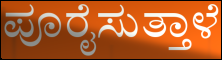
ಪೂರೈಸುತ್ತಾಳೆ